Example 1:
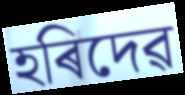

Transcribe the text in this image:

হৰিদেৱ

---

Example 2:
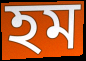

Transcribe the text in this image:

হম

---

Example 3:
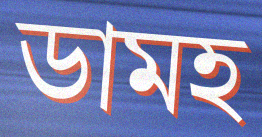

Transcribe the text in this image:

ডামহ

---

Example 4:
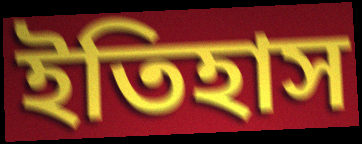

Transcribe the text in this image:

ইতিহাস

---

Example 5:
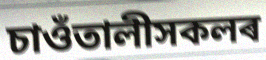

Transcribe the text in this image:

চাওঁতালীসকলৰ